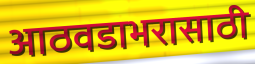
आठवडाभरासाठी